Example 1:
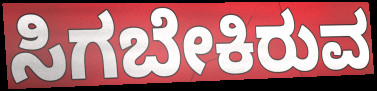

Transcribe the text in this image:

ಸಿಗಬೇಕಿರುವ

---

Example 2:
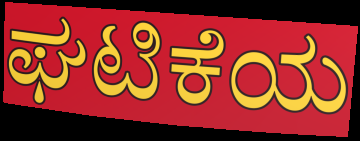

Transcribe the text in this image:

ಘಟಿಕೆಯ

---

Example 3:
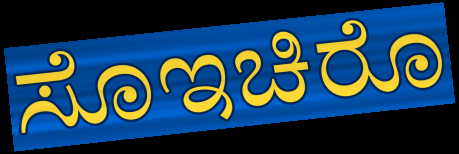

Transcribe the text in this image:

ಸೊಇಚಿರೊ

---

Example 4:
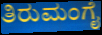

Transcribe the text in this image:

ತಿರುಮಂಗೈ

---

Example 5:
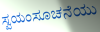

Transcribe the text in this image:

ಸ್ವಯಂಸೂಚನೆಯು